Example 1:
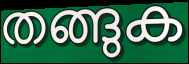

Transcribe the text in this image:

തങ്ങുക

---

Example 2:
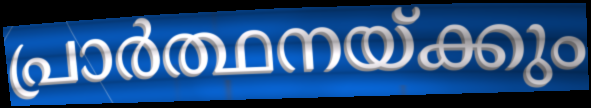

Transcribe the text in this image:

പ്രാർത്ഥനയ്ക്കും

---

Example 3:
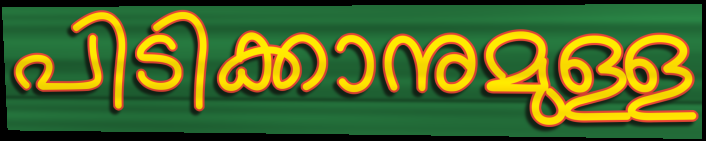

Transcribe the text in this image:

പിടിക്കാനുമുള്ള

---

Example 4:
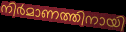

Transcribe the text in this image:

നിർമാണത്തിനായി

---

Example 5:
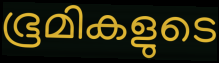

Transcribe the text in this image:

ഭൂമികളുടെ